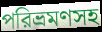
পরিভ্রমণসহ